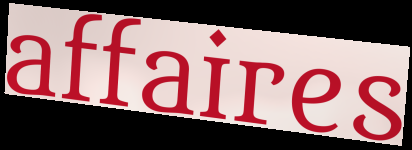
affaires